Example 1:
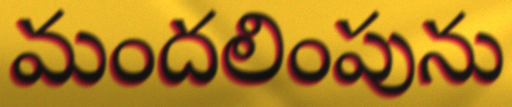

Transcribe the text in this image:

మందలింపును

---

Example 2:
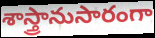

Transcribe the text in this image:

శాస్త్రానుసారంగా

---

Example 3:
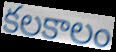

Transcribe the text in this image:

కలకాలం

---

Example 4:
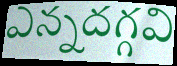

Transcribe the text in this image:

ఎన్నదగ్గవి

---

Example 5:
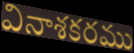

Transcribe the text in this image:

వినాశకరము